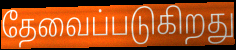
தேவைப்படுகிறது